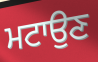
ਮਟਾਉਣ